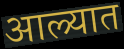
आल्यात